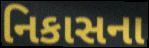
નિકાસના